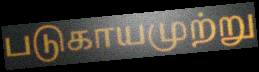
படுகாயமுற்று